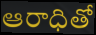
ఆరాధితో